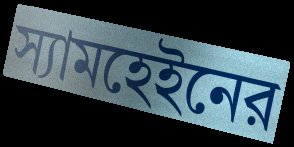
স্যামহেইনের